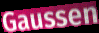
Gaussen